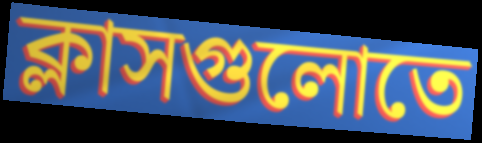
ক্লাসগুলোতে